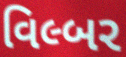
વિલ્બર